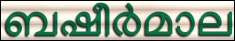
ബഷീർമാല